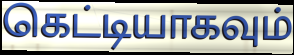
கெட்டியாகவும்